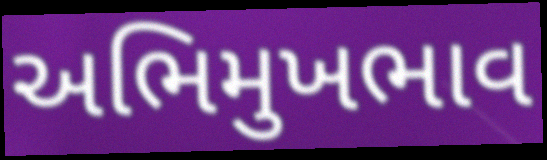
અભિમુખભાવ